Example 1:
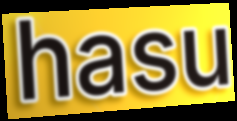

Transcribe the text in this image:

hasu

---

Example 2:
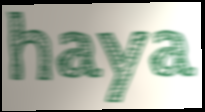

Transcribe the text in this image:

haya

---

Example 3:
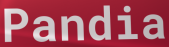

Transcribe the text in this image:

Pandia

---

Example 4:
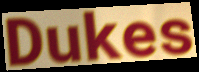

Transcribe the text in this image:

Dukes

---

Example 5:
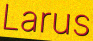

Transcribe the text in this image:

Larus